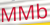
MMb